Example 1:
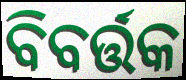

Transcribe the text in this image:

ବିବର୍ତ୍ତକ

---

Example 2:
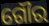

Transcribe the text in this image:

ଗୌର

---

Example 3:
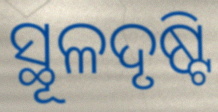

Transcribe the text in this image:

ସ୍ଥୂଳଦୃଷ୍ଟି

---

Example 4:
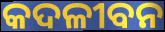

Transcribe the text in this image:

କଦଳୀବନ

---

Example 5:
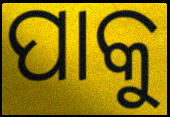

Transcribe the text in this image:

ପାକୁ